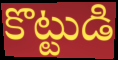
కొట్టుడి